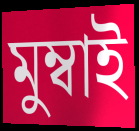
মুম্বাই